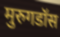
मुरुगडॉस